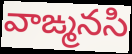
వాఙ్మనసి